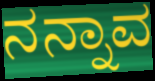
ನನ್ನಾವ